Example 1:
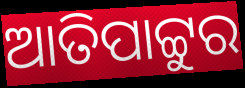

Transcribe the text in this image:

ଆତିପାଟ୍ଟୁର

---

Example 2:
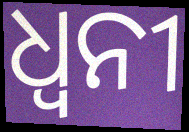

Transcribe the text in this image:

ଧ୍ୱନୀ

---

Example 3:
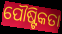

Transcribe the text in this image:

ପୌଷ୍ଟିକତା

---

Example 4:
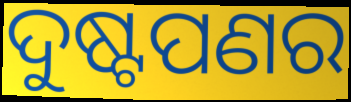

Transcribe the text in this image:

ଦୁଷ୍ଟପଣର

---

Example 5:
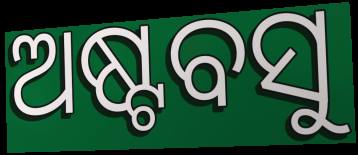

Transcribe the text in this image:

ଅଷ୍ଟବସୁ